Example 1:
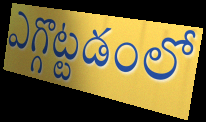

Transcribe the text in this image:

ఎగ్గొట్టడంలో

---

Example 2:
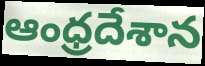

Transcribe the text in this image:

ఆంధ్రదేశాన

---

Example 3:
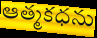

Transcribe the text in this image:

ఆత్మకధను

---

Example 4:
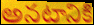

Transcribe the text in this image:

అనటానికి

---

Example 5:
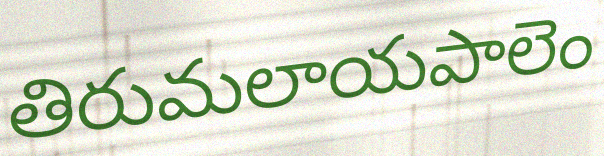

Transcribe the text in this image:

తిరుమలాయపాలెం